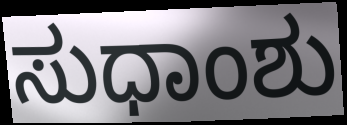
ಸುಧಾಂಶು